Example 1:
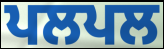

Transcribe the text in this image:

ਪਲਪਲ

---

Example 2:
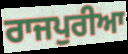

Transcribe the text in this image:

ਰਾਜਪੁਰੀਆ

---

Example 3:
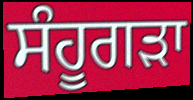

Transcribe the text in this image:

ਸੰਹੂਗੜਾ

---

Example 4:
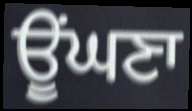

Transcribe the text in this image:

ਊਂਘਣਾ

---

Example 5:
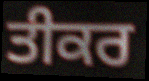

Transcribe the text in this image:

ਤੀਕਰ